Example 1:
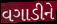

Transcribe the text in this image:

વગાડીને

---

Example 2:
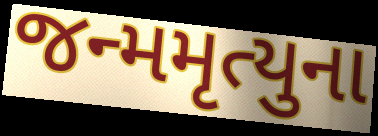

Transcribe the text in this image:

જન્મમૃત્યુના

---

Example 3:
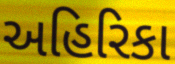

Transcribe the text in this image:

અહિરિકા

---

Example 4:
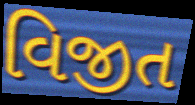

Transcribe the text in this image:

વિજીત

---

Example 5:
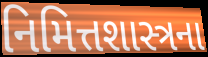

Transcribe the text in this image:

નિમિત્તશાસ્ત્રના